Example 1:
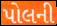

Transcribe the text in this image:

પોલની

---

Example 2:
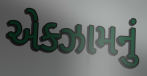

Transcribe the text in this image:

એક્ઝામનું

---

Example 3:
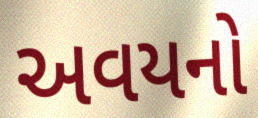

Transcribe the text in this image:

અવયનો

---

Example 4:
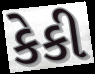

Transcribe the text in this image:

કેકી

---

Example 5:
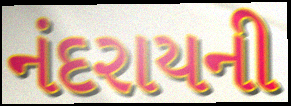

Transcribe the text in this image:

નંદરાયની